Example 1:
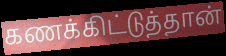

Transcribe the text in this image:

கணக்கிட்டுத்தான்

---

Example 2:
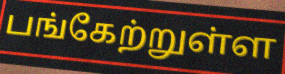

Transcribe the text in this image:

பங்கேற்றுள்ள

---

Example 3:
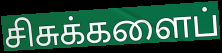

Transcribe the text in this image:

சிசுக்களைப்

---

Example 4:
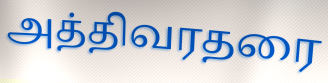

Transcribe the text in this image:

அத்திவரதரை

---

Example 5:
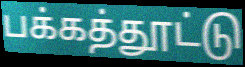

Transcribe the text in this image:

பக்கத்தூட்டு